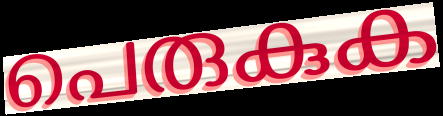
പെരുകുക